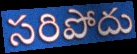
సరిపోదు